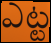
ఎట్ట